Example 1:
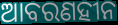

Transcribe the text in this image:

ଆବରଣହୀନ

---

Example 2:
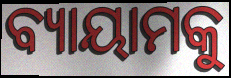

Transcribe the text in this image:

ବ୍ୟାୟାମକୁ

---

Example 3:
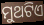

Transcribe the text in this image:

ମୁଥଟିଏ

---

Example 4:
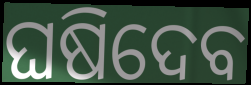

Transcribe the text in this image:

ଘଷିଦେବ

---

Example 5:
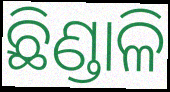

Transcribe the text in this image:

ଛିଣ୍ଡାଳି